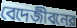
বেদেজীবনের